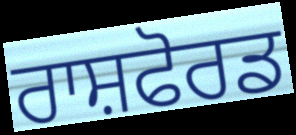
ਰਾਸ਼ਫੋਰਡ